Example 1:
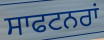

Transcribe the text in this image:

ਸਾਫਟਨਰਾਂ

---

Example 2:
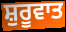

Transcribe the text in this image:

ਸ਼ੁਰੂਵਾਤ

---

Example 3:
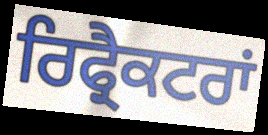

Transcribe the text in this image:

ਰਿਫ੍ਰੈਕਟਰਾਂ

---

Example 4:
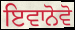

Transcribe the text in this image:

ਇਵਾਨੋਵੋ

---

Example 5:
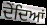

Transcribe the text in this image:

ਦੇਂਦਿਆਂ